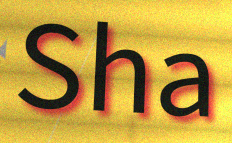
Sha